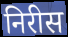
निरीस